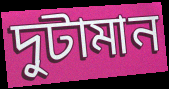
দুটামান